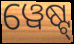
ୱେଷ୍ଟ୍